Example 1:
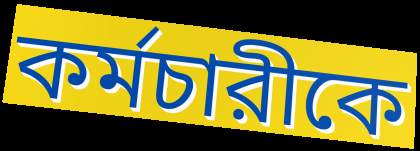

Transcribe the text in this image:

কর্মচারীকে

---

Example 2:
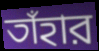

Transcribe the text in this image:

তাঁহার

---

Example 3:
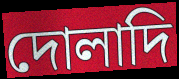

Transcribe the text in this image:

দোলাদি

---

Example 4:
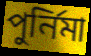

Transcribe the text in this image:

পুর্নিমা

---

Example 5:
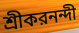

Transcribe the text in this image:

শ্রীকরনন্দী